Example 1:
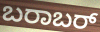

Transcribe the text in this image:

ಬರಾಬರ್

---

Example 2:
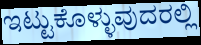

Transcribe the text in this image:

ಇಟ್ಟುಕೊಳ್ಳುವುದರಲ್ಲಿ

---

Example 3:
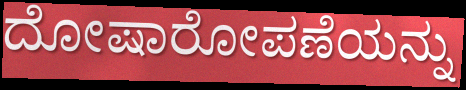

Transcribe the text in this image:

ದೋಷಾರೋಪಣೆಯನ್ನು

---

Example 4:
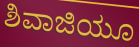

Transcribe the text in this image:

ಶಿವಾಜಿಯೂ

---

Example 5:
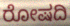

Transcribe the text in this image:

ರೋಷದಿ